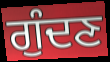
ਗੁੰਦਣ